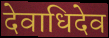
देवाधिदेव